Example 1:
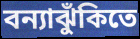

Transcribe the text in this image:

বন্যাঝুঁকিতে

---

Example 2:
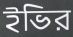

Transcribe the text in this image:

ইভির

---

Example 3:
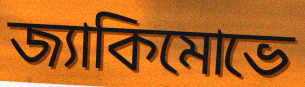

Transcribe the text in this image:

জ্যাকিমোভে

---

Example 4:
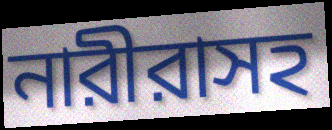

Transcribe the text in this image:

নারীরাসহ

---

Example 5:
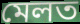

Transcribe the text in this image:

মেলত